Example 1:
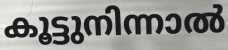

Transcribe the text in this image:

കൂട്ടുനിന്നാൽ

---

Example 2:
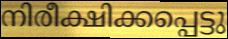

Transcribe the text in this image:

നിരീക്ഷിക്കപ്പെട്ടു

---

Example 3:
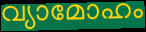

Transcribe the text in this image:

വ്യാമോഹം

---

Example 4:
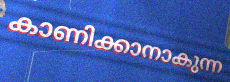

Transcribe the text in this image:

കാണിക്കാനാകുന്ന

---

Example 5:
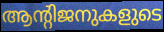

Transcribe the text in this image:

ആന്റിജനുകളുടെ